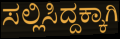
ಸಲ್ಲಿಸಿದ್ದಕ್ಕಾಗಿ